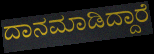
ದಾನಮಾಡಿದ್ದಾರೆ